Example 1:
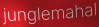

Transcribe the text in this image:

junglemahal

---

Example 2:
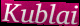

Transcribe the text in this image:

Kublai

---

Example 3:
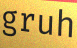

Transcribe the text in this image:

gruh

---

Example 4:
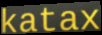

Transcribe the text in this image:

katax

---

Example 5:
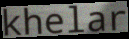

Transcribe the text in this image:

khelar